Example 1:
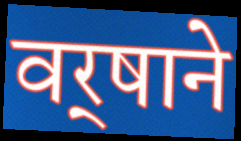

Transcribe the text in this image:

वर्षाने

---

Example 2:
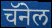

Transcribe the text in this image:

चॅनेल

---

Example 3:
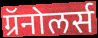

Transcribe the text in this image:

ग्रॅनोलर्स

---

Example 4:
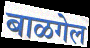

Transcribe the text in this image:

बाळगेल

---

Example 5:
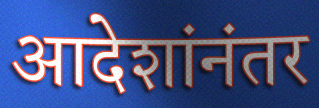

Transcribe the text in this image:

आदेशांनंतर